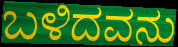
ಬಳಿದವನು